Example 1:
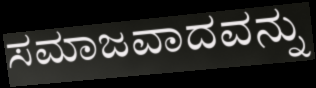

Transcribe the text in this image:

ಸಮಾಜವಾದವನ್ನು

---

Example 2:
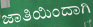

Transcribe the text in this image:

ಜಾತಿಯಿಂದಾಗಿ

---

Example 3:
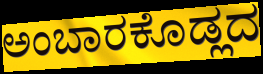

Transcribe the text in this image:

ಅಂಬಾರಕೊಡ್ಲದ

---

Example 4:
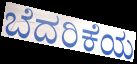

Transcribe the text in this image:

ಬೆದರಿಕೆಯ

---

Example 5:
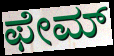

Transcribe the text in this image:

ಫೇಮ್